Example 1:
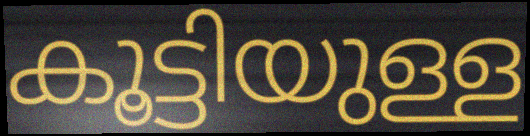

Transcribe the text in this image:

കൂട്ടിയുള്ള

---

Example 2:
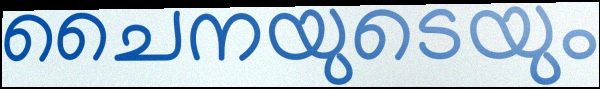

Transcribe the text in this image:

ചൈനയുടെയും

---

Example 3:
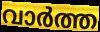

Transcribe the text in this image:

വാർത്ത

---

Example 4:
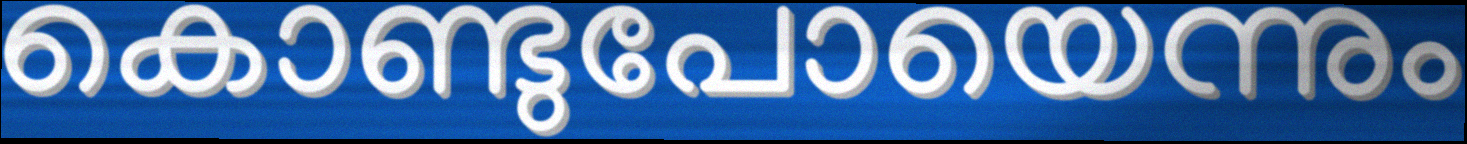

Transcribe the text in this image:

കൊണ്ടുപോയെന്നും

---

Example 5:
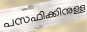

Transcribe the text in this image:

പസഫിക്കിനുള്ള